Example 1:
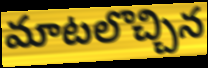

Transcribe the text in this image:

మాటలొచ్చిన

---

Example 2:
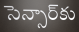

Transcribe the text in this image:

సెన్సార్‌కు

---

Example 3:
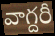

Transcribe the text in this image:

వాగ్దరీ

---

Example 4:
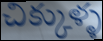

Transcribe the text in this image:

చిక్కుళ్ళ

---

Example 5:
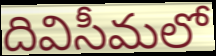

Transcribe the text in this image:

దివిసీమలో